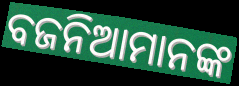
ବଜନିଆମାନଙ୍କ